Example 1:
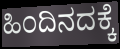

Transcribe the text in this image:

ಹಿಂದಿನದಕ್ಕೆ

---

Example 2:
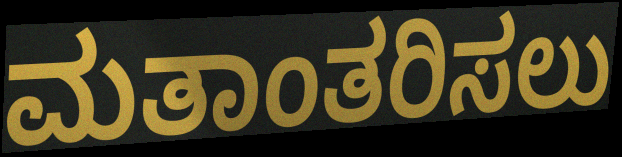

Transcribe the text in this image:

ಮತಾಂತರಿಸಲು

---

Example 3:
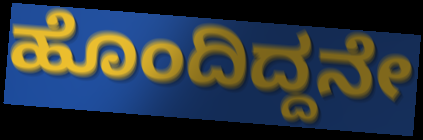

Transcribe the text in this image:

ಹೊಂದಿದ್ದನೇ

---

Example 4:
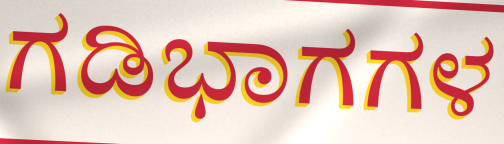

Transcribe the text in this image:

ಗಡಿಭಾಗಗಳ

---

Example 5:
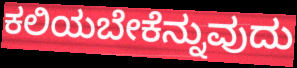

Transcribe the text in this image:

ಕಲಿಯಬೇಕೆನ್ನುವುದು